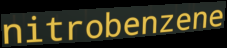
nitrobenzene